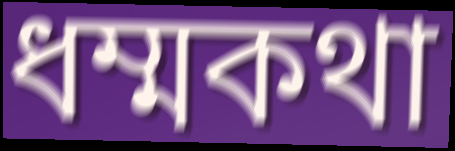
ধম্মকথা